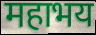
महाभय